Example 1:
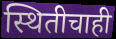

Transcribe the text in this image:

स्थितीचाही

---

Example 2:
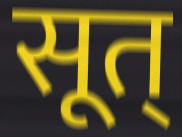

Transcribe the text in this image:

सूत्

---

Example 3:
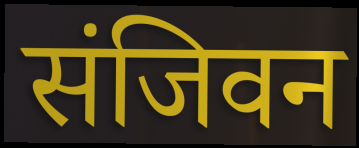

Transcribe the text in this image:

संजिवन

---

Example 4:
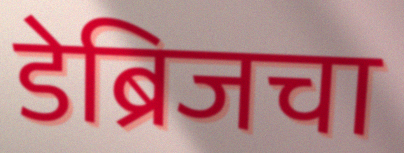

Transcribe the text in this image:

डेब्रिजचा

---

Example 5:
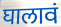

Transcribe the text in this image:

घालावं